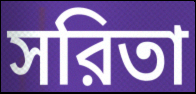
সরিতা